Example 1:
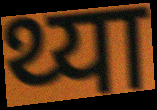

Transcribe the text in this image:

थ्या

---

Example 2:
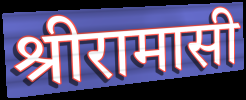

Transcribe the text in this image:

श्रीरामासी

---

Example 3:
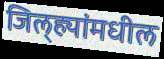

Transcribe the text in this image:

जिल्ह्यांमधील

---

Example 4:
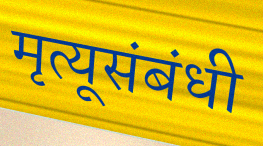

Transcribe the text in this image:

मृत्यूसंबंधी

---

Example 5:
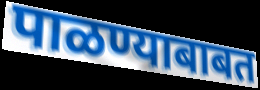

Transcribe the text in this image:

पाळण्याबाबत